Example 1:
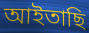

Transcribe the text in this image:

আইতাছি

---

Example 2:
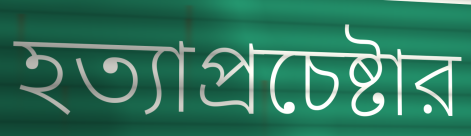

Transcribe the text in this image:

হত্যাপ্রচেষ্টার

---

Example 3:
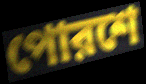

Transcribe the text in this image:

পোরশে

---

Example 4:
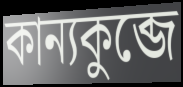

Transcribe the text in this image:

কান্যকুব্জে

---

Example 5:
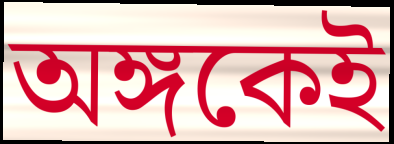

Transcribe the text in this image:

অঙ্গকেই